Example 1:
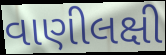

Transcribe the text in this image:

વાણીલક્ષી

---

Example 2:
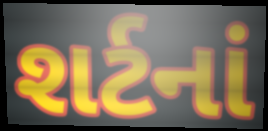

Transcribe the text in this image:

શર્ટનાં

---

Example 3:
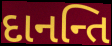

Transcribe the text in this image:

દાનન્તિ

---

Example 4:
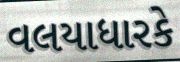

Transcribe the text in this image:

વલયાધારકે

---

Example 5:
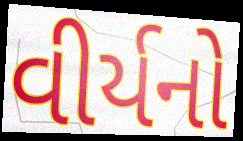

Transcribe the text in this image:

વીર્યનો